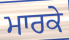
ਮਾਰਕੇ